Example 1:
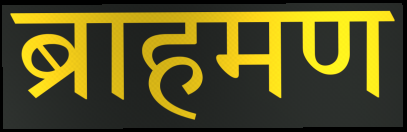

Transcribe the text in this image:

ब्राहमण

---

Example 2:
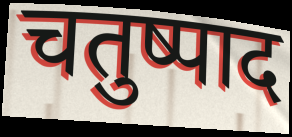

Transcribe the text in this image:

चतुष्पाद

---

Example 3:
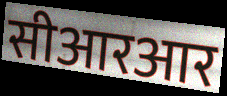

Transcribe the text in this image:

सीआरआर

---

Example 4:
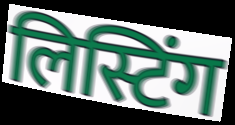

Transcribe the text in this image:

लिस्टिंग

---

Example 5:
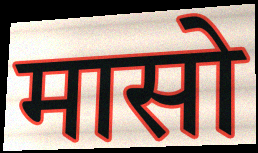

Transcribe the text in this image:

मासो